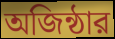
অজিন্ঠার